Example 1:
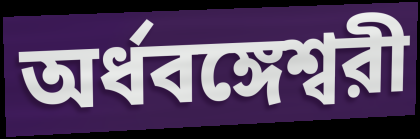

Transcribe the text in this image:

অর্ধবঙ্গেশ্বরী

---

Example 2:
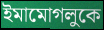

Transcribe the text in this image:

ইমামোগলুকে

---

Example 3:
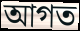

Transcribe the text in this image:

আগত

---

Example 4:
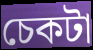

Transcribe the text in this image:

চেকটা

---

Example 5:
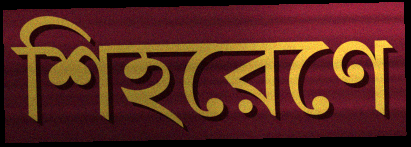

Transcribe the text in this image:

শিহরেণে